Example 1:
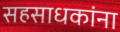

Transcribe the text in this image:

सहसाधकांना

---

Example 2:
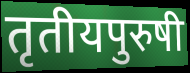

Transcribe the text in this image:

तृतीयपुरुषी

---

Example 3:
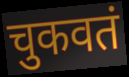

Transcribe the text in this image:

चुकवतं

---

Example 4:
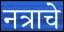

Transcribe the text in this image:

नत्राचे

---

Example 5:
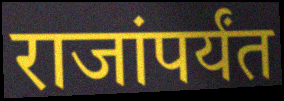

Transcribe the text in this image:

राजांपर्यंत